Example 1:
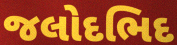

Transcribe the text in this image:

જલોદભિદ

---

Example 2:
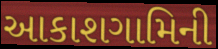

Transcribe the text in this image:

આકાશગામિની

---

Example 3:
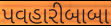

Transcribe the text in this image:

પવહારીબાબા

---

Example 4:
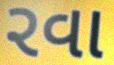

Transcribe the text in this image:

રવા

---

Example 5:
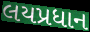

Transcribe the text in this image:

લયપ્રધાન